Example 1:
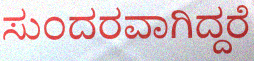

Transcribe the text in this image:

ಸುಂದರವಾಗಿದ್ದರೆ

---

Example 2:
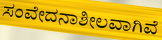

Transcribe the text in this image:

ಸಂವೇದನಾಶೀಲವಾಗಿವೆ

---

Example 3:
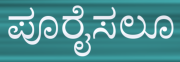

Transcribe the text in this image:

ಪೂರೈಸಲೂ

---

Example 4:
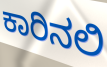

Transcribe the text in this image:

ಕಾರಿನಲಿ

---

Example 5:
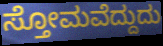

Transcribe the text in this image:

ಸ್ತೋಮವೆದ್ದುದು